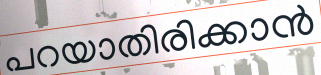
പറയാതിരിക്കാൻ